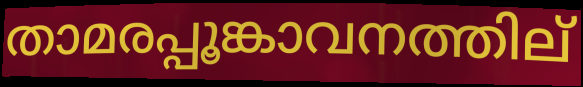
താമരപ്പൂങ്കാവനത്തില്